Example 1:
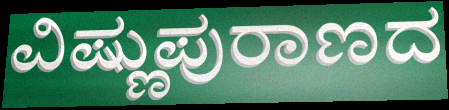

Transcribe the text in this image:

ವಿಷ್ಣುಪುರಾಣದ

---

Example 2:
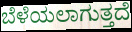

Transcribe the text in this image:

ಬೆಳೆಯಲಾಗುತ್ತದೆ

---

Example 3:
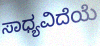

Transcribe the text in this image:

ಸಾಧ್ಯವಿದೆಯೆ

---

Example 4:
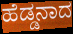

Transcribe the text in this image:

ಹೆಡ್ಡನಾದ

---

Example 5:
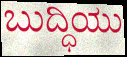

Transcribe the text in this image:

ಬುದ್ಧಿಯು